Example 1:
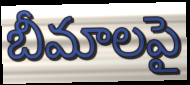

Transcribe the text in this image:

బీమాలపై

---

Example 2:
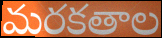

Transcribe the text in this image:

మరకతాల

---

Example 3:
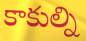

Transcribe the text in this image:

కాకుల్ని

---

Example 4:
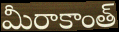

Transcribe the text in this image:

మీరాకాంత్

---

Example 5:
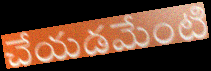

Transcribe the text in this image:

చేయడమేంటి